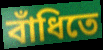
বাঁধিতে